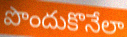
పొందుకొనేలా